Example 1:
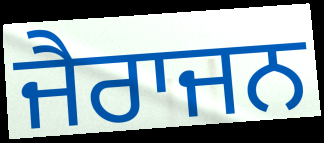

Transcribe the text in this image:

ਜੈਰਾਜਨ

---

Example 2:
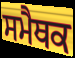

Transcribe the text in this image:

ਸਮੈਥਕ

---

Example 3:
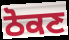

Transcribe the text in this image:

ਠੋਕਣ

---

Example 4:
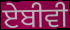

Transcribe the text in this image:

ਏਬੀਵੀ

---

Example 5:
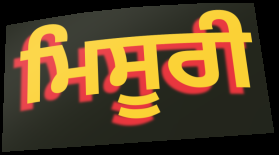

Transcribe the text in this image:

ਮਿਸੂਰੀ